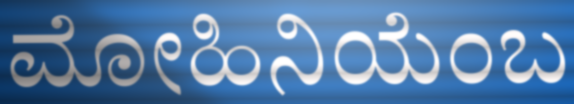
ಮೋಹಿನಿಯೆಂಬ